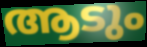
ആടും